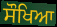
ਸੌਖਿਆ